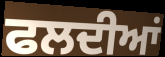
ਫਲਦੀਆਂ